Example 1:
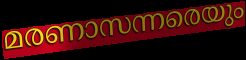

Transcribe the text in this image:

മരണാസന്നരെയും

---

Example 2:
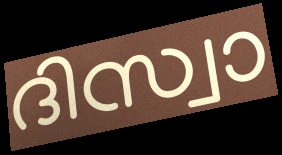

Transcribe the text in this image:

ദിസ്വാ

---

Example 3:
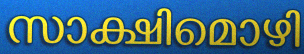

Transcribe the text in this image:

സാക്ഷിമൊഴി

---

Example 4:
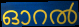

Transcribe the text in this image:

ഓറൽ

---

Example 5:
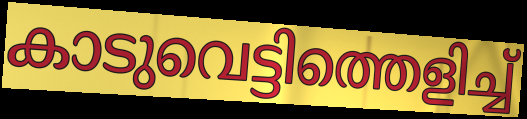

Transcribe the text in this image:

കാടുവെട്ടിത്തെളിച്ച്